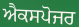
ਐਕਸਪੋਜਰ